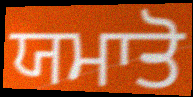
ਯਮਾਤੋ